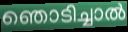
ഞൊടിച്ചാൽ